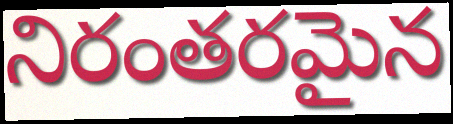
నిరంతరమైన